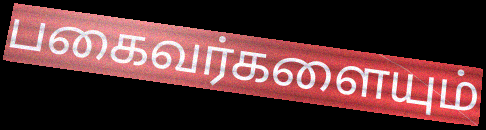
பகைவர்களையும்